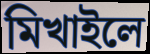
মিখাইলে